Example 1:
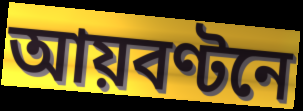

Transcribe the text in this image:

আয়বণ্টনে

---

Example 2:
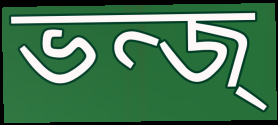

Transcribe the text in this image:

ভন্জ্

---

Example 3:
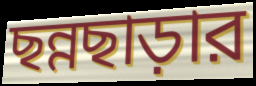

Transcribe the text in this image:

ছন্নছাড়ার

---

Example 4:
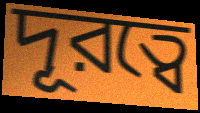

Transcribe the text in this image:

দূরত্বে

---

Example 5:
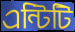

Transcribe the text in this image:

এন্টিটি